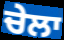
ਚੇਲਾ